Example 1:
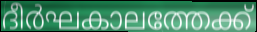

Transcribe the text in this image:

ദീർഘകാലത്തേക്ക്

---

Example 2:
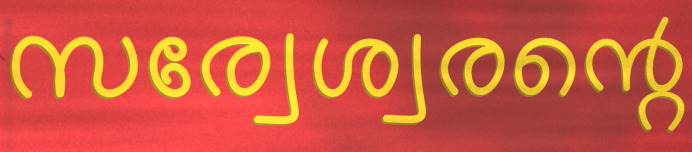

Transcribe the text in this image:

സര്വേശ്വരന്റെ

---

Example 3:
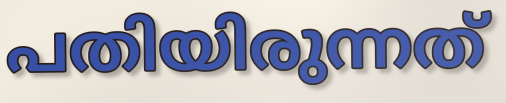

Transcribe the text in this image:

പതിയിരുന്നത്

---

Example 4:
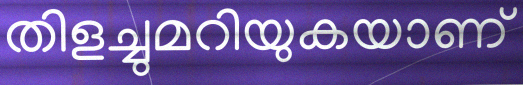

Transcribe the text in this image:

തിളച്ചുമറിയുകയാണ്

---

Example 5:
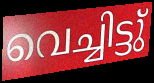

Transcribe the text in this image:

വെച്ചിട്ടു്